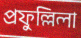
প্রফুল্লিলা